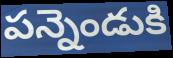
పన్నెండుకి